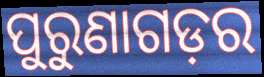
ପୁରୁଣାଗଡ଼ର